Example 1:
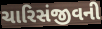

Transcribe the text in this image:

ચારિસંજીવની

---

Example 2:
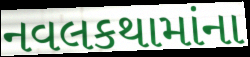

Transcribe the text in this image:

નવલકથામાંના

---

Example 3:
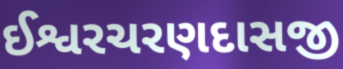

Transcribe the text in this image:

ઈશ્વરચરણદાસજી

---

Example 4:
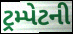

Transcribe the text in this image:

ટ્રમ્પેટની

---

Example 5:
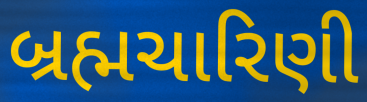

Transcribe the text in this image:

બ્રહ્મચારિણી